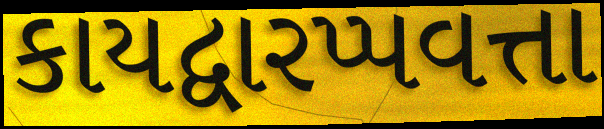
કાયદ્વારપ્પવત્તા